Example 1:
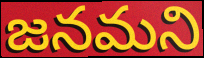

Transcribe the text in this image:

జనమని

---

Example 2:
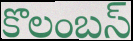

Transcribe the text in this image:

కొలంబస్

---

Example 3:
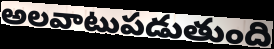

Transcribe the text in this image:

అలవాటుపడుతుంది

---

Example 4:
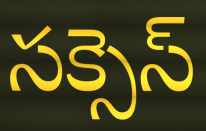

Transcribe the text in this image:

సక్సెస్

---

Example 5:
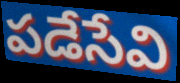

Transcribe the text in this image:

పడేసేవి